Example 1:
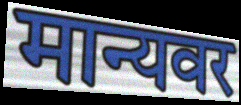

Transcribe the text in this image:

मान्‍यवर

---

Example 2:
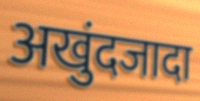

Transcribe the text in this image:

अखुंदजादा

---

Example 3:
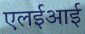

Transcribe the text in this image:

एलईआई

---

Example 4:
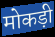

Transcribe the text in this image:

मोकड़ी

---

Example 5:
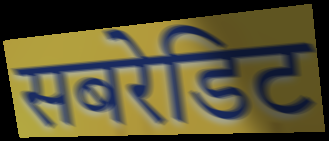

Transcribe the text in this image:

सबरेडिट